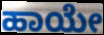
ಹಾಯೇ